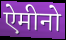
ऐमीनो